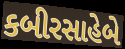
કબીરસાહેબે